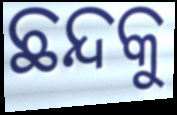
ଛନ୍ଦକୁ